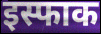
इस्फाक